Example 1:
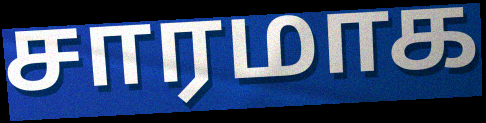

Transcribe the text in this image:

சாரமாக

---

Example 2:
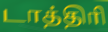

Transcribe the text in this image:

டாத்திரி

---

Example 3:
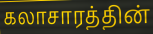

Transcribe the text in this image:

கலாசாரத்தின்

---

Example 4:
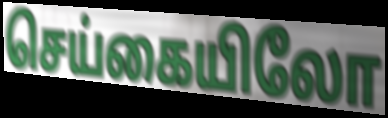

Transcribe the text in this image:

செய்கையிலோ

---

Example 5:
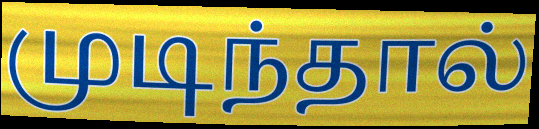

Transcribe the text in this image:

முடிந்தால்